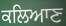
ਕਲਿਆਣ